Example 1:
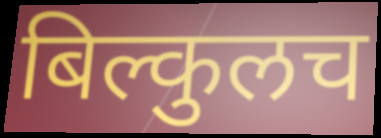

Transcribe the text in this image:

बिल्कुलच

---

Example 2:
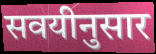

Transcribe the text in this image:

सवयीनुसार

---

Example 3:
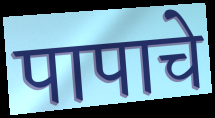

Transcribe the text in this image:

पापाचे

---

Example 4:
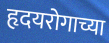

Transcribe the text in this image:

हृदयरोगाच्या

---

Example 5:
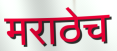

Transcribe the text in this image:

मराठेच